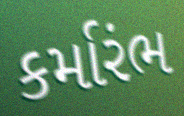
કર્મારંભ